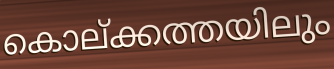
കൊല്ക്കത്തയിലും